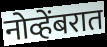
नोव्हेंबरात